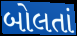
બોલતાં